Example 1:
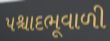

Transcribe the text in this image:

પશ્ચાદભૂવાળી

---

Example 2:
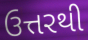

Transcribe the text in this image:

ઉત્તરથી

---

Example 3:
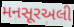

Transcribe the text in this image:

મનસૂરઅલી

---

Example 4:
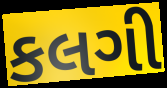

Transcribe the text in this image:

કલગી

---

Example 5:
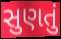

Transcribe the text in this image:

સુણતું